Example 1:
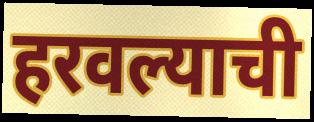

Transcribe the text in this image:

हरवल्याची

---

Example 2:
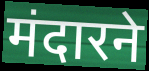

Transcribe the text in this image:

मंदारने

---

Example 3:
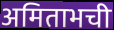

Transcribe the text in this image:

अमिताभची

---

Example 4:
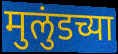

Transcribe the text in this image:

मुलुंडच्या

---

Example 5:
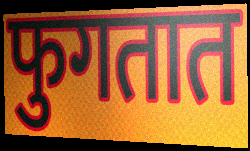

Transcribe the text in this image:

फुगतात